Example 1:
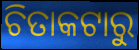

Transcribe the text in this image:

ଚିତାକଟାରୁ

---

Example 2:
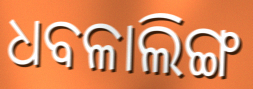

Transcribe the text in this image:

ଧବଳାଲିଙ୍ଗ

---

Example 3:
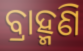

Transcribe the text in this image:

ବ୍ରାହ୍ମଣି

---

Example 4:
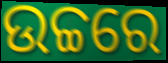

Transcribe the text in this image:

ଉଚ୍ଚରେ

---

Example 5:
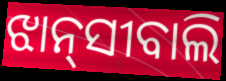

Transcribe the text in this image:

ଝାନ୍‌ସୀବାଲି